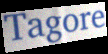
Tagore